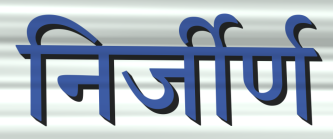
निर्जीर्ण